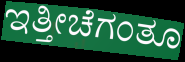
ಇತ್ತೀಚೆಗಂತೂ